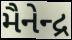
મૈનેન્દ્ર